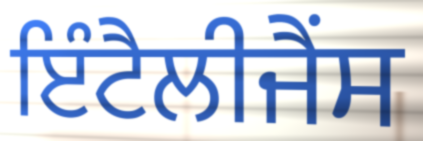
ਇੰਟੈਲੀਜੈਂਸ